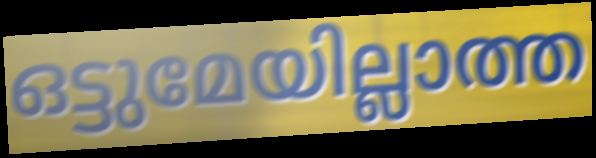
ഒട്ടുമേയില്ലാത്ത